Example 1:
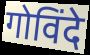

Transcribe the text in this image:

गोविंदे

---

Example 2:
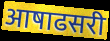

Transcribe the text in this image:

आषाढसरी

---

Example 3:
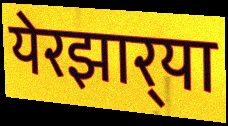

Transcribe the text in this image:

येरझार्‍या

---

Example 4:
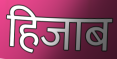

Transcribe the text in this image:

हिजाब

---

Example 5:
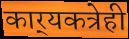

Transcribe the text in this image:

कार्यकत्रेही